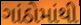
ગાંઠોમાંથી